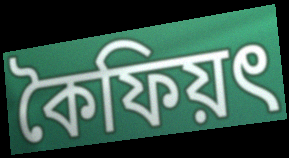
কৈফিয়ৎ